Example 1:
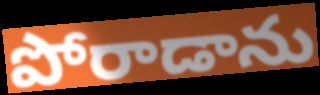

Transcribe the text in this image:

పోరాడాను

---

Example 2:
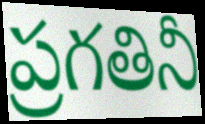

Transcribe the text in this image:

ప్రగతినీ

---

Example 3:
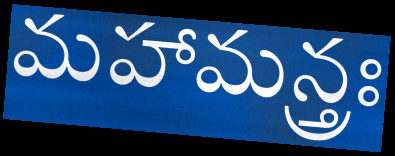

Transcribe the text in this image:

మహామన్త్రః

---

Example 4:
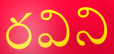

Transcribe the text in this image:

రవిని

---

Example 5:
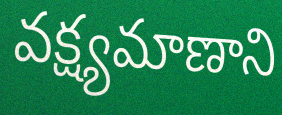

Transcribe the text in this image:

వక్ష్యమాణాని